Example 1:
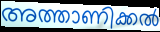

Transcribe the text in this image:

അത്താണിക്കൽ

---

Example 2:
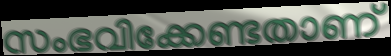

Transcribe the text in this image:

സംഭവിക്കേണ്ടതാണ്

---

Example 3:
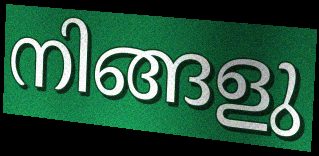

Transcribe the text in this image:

നിങ്ങളു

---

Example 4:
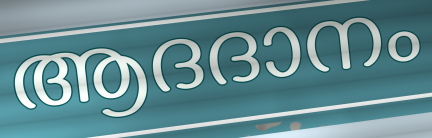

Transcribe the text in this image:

ആദദാനം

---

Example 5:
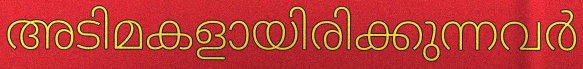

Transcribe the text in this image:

അടിമകളായിരിക്കുന്നവർ